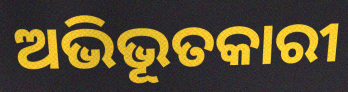
ଅଭିଭୂତକାରୀ